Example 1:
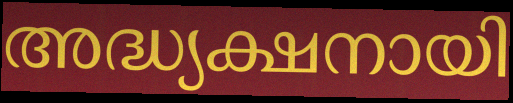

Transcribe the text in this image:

അദ്ധ്യക്ഷനായി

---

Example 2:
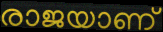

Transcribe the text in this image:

രാജയാണ്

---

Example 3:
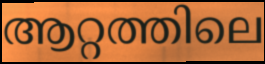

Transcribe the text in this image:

ആറ്റത്തിലെ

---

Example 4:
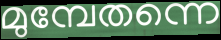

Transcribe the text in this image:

മുമ്പേതന്നെ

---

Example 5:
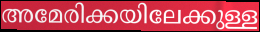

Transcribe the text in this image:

അമേരിക്കയിലേക്കുള്ള